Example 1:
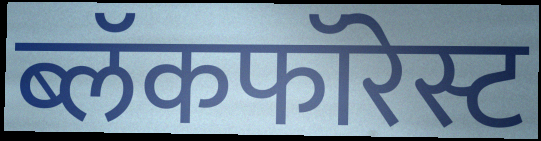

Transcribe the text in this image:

ब्लॅकफॉरेस्ट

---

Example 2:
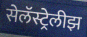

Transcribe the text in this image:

सेलॅस्ट्रेलीझ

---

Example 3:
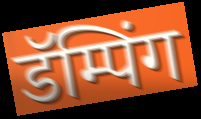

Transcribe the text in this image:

डॅम्पिंग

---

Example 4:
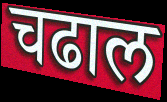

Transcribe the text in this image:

चढाल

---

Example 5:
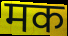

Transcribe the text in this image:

मक